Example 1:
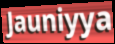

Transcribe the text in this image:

Jauniyya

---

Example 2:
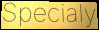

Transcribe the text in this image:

Specialy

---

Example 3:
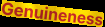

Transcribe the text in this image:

Genuineness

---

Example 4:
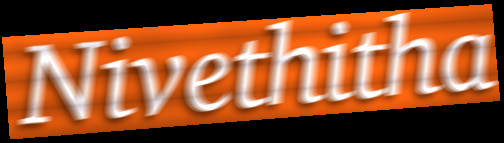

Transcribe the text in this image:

Nivethitha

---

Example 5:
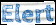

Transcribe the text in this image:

Elert